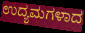
ಉದ್ಯಮಗಳಾದ